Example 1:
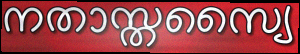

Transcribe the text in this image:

നതാസ്തസ്യൈ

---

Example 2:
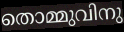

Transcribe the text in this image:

തൊമ്മുവിനു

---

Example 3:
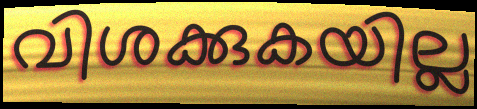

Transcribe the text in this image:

വിശക്കുകയില്ല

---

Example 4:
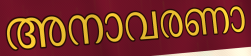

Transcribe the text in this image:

അനാവരണാ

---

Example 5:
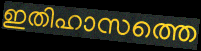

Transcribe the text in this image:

ഇതിഹാസത്തെ